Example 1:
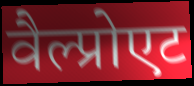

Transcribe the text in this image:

वैल्प्रोएट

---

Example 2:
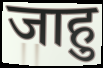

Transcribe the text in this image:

जाहु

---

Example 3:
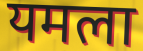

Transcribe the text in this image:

यमला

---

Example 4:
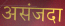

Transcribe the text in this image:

असंजदा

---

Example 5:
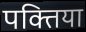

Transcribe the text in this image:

पक्तिया